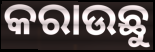
କରାଉଛୁ